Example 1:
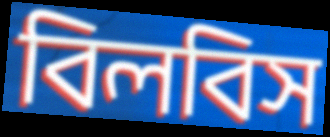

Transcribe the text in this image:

বিলবিস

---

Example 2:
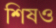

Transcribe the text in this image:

শিষও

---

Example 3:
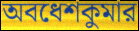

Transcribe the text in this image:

অবধেশকুমার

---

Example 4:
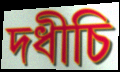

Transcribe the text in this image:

দধীচি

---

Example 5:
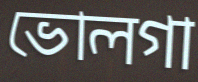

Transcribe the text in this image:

ভোলগা